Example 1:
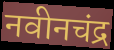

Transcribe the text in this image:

नवीनचंद्र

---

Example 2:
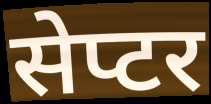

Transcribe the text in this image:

सेप्टर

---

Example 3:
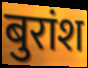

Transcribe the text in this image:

बुरांश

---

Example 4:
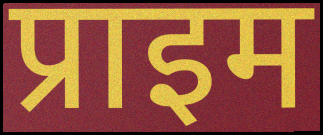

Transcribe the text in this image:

प्राइम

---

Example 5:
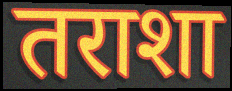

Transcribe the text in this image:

तराशा